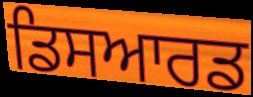
ਡਿਸਆਰਡ